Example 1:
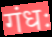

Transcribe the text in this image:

गंधः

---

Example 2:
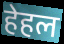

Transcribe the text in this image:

हेहल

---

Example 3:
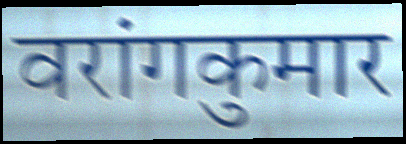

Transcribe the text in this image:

वरांगकुमार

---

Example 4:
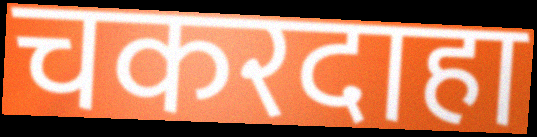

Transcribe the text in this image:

चकरदाहा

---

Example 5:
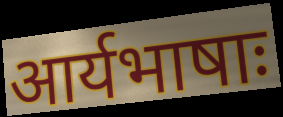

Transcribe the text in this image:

आर्यभाषाः